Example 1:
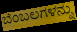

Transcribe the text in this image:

ಬೆಂಬಲಗಳನ್ನು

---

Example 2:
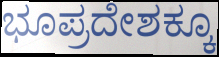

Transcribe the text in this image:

ಭೂಪ್ರದೇಶಕ್ಕೂ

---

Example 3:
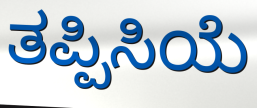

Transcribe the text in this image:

ತಪ್ಪಿಸಿಯೆ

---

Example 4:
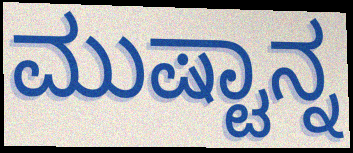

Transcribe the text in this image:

ಮುಷ್ಟಾನ್ನ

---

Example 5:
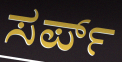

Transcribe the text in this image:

ಸರ್ಪ್